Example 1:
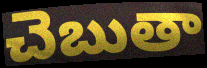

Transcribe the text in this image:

చెబుతా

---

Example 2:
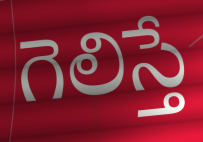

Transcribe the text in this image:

గెలిస్తే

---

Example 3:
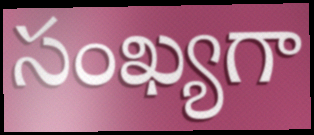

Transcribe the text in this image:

సంఖ్యగా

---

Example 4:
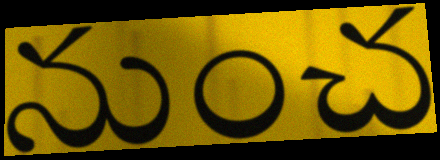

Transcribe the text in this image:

నుంచ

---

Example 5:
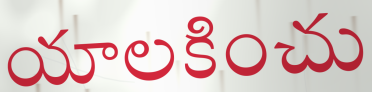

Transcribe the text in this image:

యాలకించు